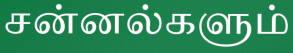
சன்னல்களும்